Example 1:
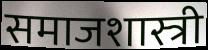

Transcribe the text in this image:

समाजशास्त्री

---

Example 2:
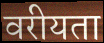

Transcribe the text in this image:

वरीयता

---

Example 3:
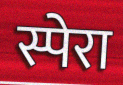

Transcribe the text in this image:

स्पेरा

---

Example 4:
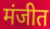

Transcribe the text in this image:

मंजीत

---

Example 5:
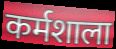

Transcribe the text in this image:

कर्मशाला